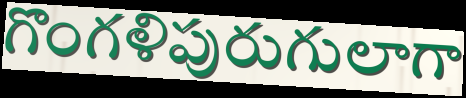
గొంగళిపురుగులాగా